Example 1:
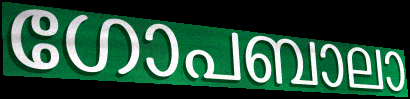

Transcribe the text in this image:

ഗോപബാലാ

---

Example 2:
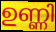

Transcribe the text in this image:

ഉണ്ണി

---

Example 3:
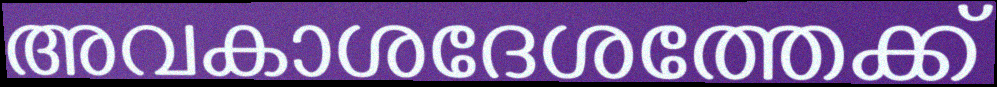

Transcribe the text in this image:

അവകാശദേശത്തേക്ക്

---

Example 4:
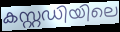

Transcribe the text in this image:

കസ്റ്റഡിയിലെ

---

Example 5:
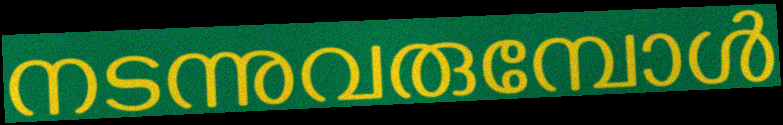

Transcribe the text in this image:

നടന്നുവരുമ്പോൾ